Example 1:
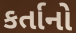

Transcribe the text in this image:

કર્તાનો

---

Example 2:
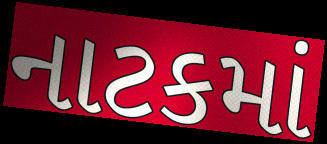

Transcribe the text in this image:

નાટકમાં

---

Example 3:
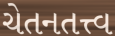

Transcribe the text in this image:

ચેતનતત્ત્વ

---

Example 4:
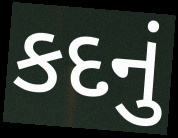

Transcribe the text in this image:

કદનું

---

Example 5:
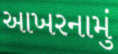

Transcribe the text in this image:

આખરનામું